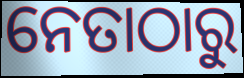
ନେତାଠାରୁ